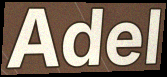
Adel